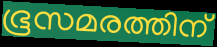
ഭൂസമരത്തിന്